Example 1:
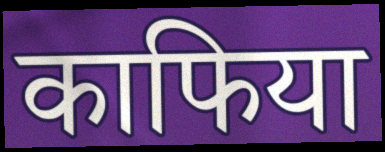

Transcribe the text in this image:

काफिया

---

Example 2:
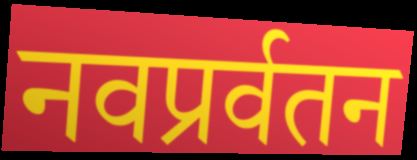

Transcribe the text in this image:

नवप्रर्वतन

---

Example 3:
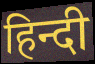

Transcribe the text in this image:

हिन्‍दी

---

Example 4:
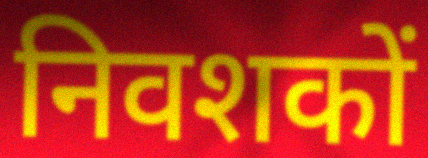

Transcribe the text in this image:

निवशकों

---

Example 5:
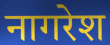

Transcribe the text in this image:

नागरेश